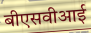
बीएसवीआई